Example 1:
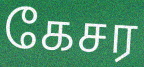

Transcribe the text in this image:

கேசர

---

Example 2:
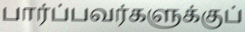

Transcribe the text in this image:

பார்ப்பவர்களுக்குப்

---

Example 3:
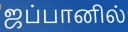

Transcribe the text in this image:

ஜப்பானில்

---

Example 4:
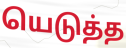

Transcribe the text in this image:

யெடுத்த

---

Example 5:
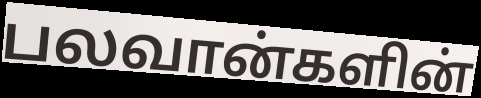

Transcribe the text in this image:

பலவான்களின்